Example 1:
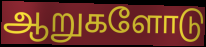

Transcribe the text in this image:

ஆறுகளோடு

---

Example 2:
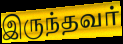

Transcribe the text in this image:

இருந்தவர்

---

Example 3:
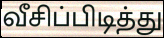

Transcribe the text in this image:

வீசிப்பிடித்து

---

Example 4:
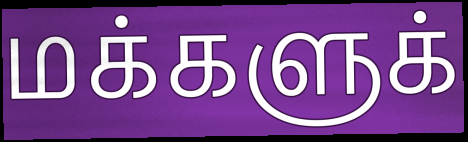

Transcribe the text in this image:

மக்களுக்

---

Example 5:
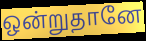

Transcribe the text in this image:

ஒன்றுதானே